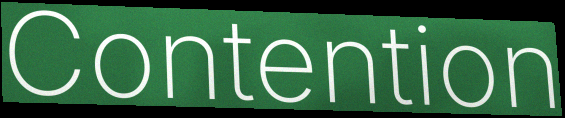
Contention